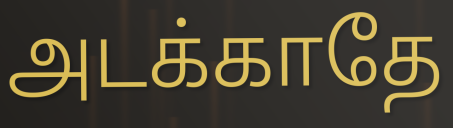
அடக்காதே